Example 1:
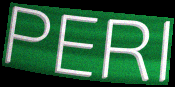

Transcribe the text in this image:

PERI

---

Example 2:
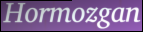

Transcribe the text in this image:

Hormozgan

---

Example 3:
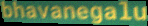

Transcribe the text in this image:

bhavanegalu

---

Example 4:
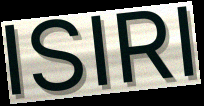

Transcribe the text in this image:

ISIRI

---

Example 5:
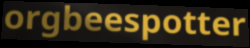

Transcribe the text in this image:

orgbeespotter